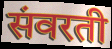
संवरती